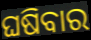
ଘଷିବାର